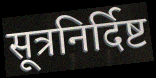
सूत्रनिर्दिष्ट